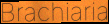
Brachiaria